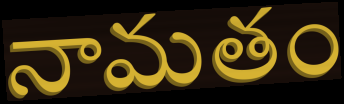
నామతం